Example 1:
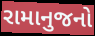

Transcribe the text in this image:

રામાનુજનો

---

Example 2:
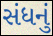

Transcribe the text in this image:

સંધનું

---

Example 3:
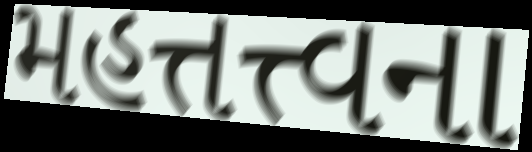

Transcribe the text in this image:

મહત્તત્ત્વના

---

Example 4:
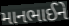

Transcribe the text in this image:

માનભાઈને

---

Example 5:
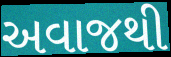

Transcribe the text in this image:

અવાજથી